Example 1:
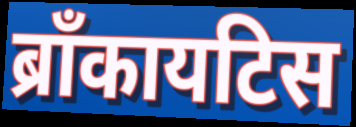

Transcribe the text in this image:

ब्राँकायटिस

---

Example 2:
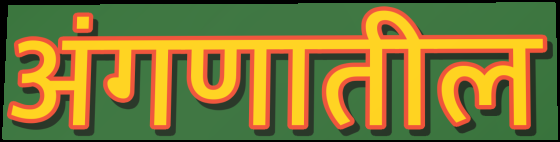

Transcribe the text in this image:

अंगणातील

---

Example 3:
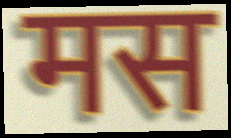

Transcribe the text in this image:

मस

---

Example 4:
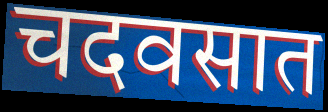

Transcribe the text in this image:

चदवसात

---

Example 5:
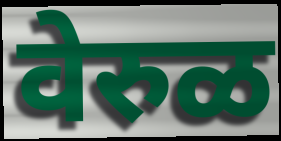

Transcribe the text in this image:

वेरुळ